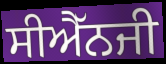
ਸੀਐੱਨਜੀ